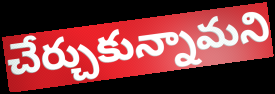
చేర్చుకున్నామని